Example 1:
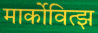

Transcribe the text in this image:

मार्कोवित्झ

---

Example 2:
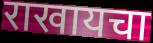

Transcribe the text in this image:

राखायचा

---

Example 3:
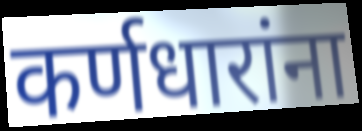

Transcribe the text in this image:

कर्णधारांना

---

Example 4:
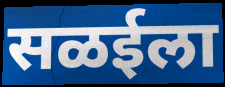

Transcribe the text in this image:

सळईला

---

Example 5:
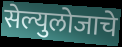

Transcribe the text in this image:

सेल्युलोजाचे